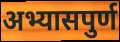
अभ्यासपुर्ण